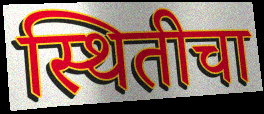
स्थितीचा